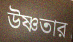
উষ্ণতার